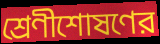
শ্রেণীশোষণের